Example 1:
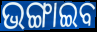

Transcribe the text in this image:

ଭଙ୍ଗାଇବ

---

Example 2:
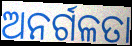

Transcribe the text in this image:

ଅନର୍ଗଳତା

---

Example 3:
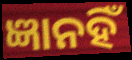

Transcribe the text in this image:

ଜ୍ଞାନହିଁ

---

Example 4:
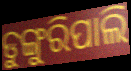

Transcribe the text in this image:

ଡୁଙ୍ଗୁରିପାଲି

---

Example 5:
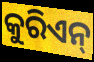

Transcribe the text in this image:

କୁରିଏନ୍